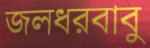
জলধরবাবু